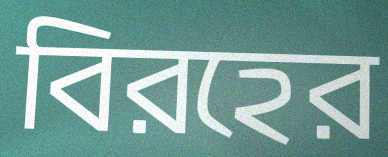
বিরহের